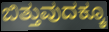
ಬಿತ್ತುವುದಕ್ಕೂ